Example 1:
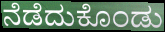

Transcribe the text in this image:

ನೆಡೆದುಕೊಂಡು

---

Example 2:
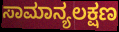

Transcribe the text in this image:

ಸಾಮಾನ್ಯಲಕ್ಷಣ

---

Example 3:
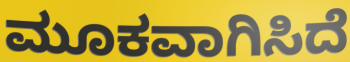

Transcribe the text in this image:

ಮೂಕವಾಗಿಸಿದೆ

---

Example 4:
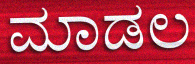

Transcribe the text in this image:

ಮಾಡಲ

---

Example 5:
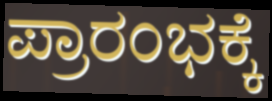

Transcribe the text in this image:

ಪ್ರಾರಂಭಕ್ಕೆ